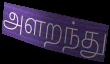
அளறந்து